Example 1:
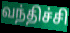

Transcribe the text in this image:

வந்திச்சி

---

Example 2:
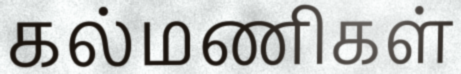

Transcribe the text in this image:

கல்மணிகள்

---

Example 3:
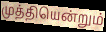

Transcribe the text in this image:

முத்தியென்றும்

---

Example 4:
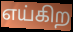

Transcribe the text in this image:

எய்கிற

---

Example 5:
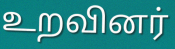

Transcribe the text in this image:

உறவினர்